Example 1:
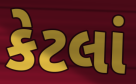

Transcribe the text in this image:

કેટલાં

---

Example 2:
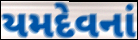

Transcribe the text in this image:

યમદેવનાં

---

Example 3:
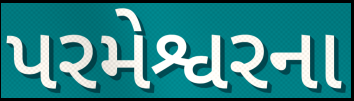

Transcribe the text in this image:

પરમેશ્વરના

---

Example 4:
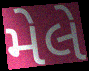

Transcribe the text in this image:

મેલે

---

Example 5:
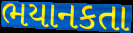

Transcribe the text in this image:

ભયાનકતા